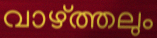
വാഴ്ത്തലും